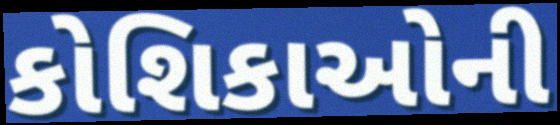
કોશિકાઓની